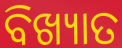
ବିଖ୍ୟାତ